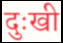
दुःखी